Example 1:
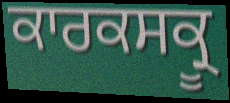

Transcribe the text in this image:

ਕਾਰਕਸਕ੍ਰੂ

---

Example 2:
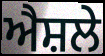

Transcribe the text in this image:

ਐਸ਼ਲੇ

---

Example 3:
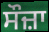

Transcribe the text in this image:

ਸੌਜ਼ਾ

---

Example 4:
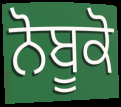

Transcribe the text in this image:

ਨੋਬੂਕੋ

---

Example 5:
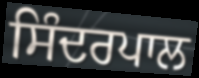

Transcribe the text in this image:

ਸਿੰਦਰਪਾਲ